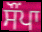
ਸੌਂਪਾ